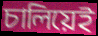
চালিয়েই